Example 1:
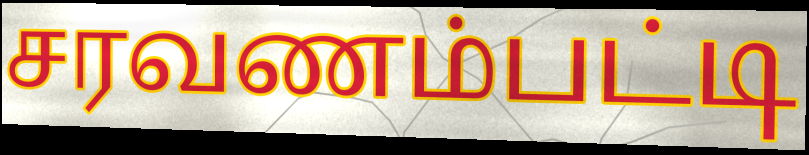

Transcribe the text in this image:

சரவணம்பட்டி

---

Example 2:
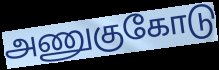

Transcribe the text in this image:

அணுகுகோடு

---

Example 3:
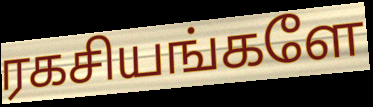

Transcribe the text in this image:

ரகசியங்களே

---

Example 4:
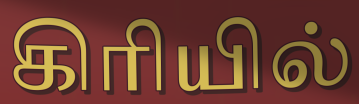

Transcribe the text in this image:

கிரியில்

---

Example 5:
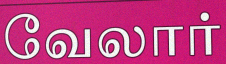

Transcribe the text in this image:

வேலார்